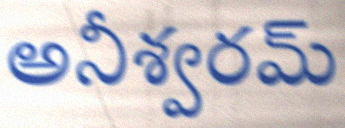
అనీశ్వరమ్